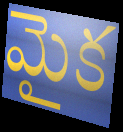
మైక